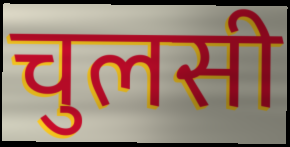
चुलसी